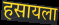
हसायला